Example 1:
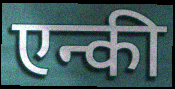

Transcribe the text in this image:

एन्की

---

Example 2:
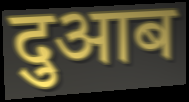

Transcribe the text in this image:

दुआब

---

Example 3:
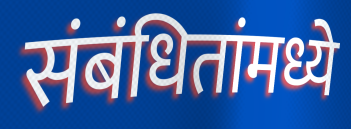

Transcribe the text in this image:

संबंधितांमध्ये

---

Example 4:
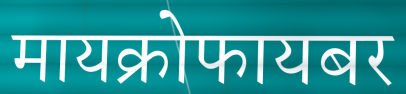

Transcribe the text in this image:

मायक्रोफायबर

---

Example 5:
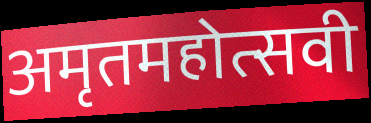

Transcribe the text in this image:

अमृतमहोत्सवी